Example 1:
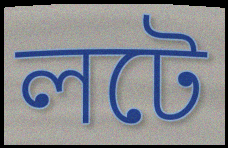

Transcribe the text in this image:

লটে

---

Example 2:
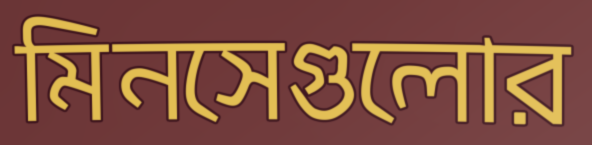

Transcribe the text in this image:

মিনসেগুলোর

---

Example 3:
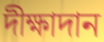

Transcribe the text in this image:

দীক্ষাদান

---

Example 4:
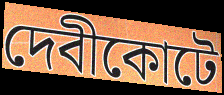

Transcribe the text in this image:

দেবীকোটে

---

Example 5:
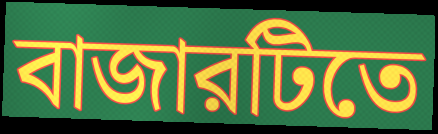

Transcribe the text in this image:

বাজারটিতে